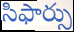
సిఫార్సు